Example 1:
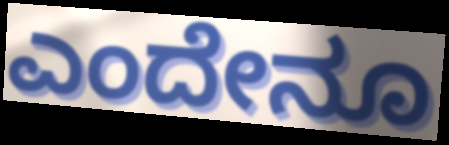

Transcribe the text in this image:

ಎಂದೇನೂ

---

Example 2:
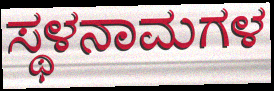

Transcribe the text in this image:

ಸ್ಥಳನಾಮಗಳ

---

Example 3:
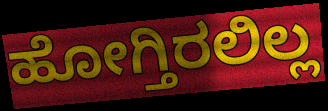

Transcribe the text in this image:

ಹೋಗ್ತಿರಲಿಲ್ಲ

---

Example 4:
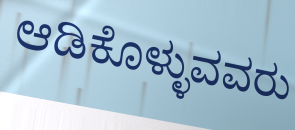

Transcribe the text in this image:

ಆಡಿಕೊಳ್ಳುವವರು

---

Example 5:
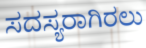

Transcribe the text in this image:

ಸದಸ್ಯರಾಗಿರಲು